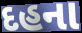
દહના